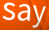
say